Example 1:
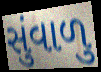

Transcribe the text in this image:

સુંવાળુ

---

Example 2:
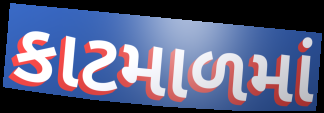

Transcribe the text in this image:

કાટમાળમાં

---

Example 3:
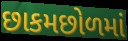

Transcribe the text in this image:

છાકમછોળમાં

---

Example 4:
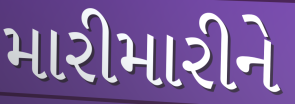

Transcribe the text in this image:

મારીમારીને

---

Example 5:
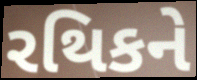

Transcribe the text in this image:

રથિકને